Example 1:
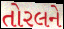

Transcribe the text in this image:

તોરલને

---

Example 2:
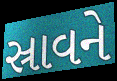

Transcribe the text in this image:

સ્રાવને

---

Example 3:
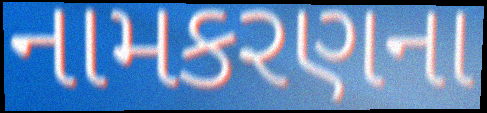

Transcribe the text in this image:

નામકરણના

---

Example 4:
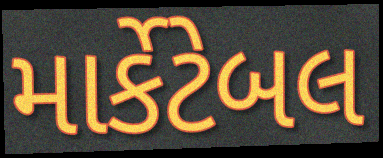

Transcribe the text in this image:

માર્કેટેબલ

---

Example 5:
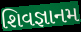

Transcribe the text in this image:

શિવજ્ઞાનમ